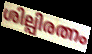
ശില്പിരത്നം